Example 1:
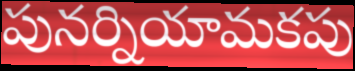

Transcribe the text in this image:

పునర్నియామకపు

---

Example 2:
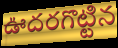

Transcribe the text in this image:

ఊదరగొట్టిన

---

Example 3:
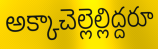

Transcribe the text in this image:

అక్కాచెల్లెల్లిద్దరూ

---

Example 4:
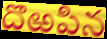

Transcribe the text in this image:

దొఱపిన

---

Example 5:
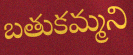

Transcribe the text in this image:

బతుకమ్మని